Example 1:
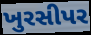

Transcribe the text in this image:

ખુરસીપર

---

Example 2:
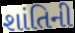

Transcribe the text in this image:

શાંતિની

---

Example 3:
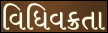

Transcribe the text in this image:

વિધિવક્રતા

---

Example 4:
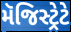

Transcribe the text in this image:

મૅજિસ્ટ્રેટે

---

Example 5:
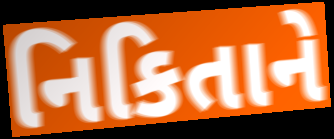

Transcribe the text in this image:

નિકિતાને